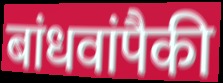
बांधवांपैकी